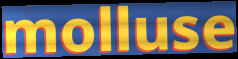
molluse